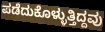
ಪಡೆದುಕೊಳ್ಳುತ್ತಿದ್ದವು